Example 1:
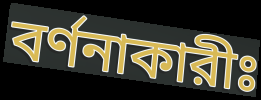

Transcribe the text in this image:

বর্ণনাকারীঃ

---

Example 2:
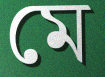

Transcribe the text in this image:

মে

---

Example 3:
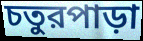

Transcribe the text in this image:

চতুরপাড়া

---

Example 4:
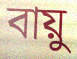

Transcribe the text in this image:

বায়ু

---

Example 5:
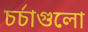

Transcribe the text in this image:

চর্চাগুলো